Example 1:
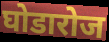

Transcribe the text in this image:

घोडारोज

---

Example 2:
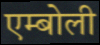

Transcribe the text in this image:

एम्बोली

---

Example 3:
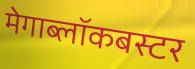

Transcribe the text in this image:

मेगाब्लॉकबस्टर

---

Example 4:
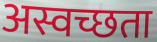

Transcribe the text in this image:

अस्वच्छता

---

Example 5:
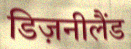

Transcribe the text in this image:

डिज़नीलैंड